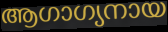
ആഗാഗ്യനായ